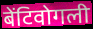
बेंटिवोगली